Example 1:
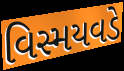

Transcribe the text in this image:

વિસ્મયવડે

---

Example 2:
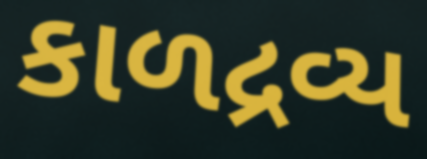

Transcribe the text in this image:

કાળદ્રવ્ય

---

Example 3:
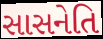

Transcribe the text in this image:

સાસનેતિ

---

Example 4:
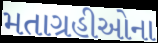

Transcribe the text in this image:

મતાગ્રહીઓના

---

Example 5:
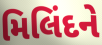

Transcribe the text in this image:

મિલિંદને